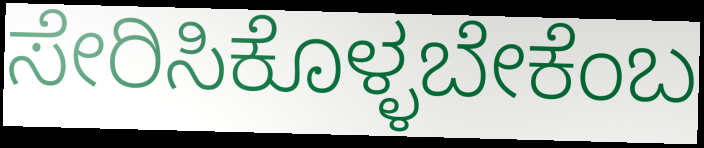
ಸೇರಿಸಿಕೊಳ್ಳಬೇಕೆಂಬ